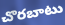
చొరబాటు